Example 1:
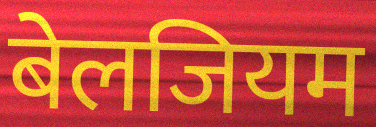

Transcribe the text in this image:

बेलजियम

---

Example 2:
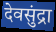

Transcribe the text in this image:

देवसुंद्रा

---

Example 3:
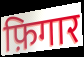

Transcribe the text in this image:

फ़िगार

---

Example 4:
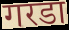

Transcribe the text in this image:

गरडा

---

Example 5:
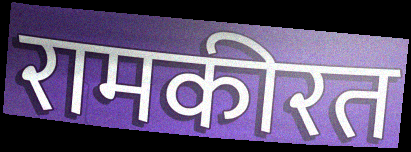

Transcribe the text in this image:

रामकीरत